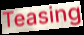
Teasing